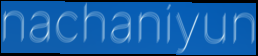
nachaniyun